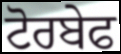
ਟੋਰਬੇਫ